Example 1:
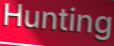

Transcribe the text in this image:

Hunting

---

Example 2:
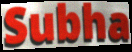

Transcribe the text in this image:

Subha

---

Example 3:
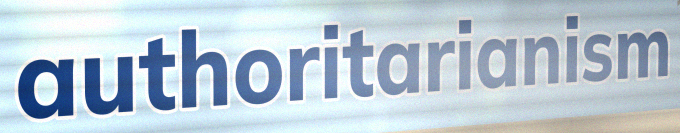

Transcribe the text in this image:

authoritarianism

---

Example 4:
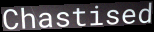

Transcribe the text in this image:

Chastised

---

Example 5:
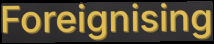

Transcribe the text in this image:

Foreignising